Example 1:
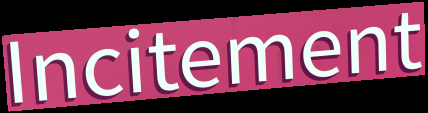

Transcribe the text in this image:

Incitement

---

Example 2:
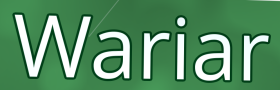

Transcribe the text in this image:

Wariar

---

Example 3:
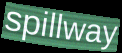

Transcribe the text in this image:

spillway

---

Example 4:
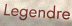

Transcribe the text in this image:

Legendre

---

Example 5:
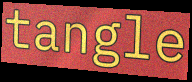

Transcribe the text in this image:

tangle